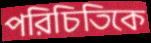
পরিচিতিকে